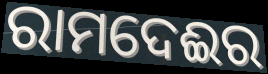
ରାମଦେଈର